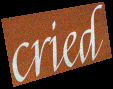
cried